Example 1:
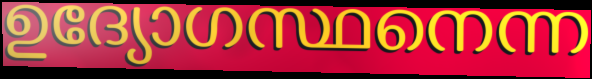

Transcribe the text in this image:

ഉദ്യോഗസ്ഥനെന്ന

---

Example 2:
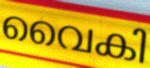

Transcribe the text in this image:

വൈകി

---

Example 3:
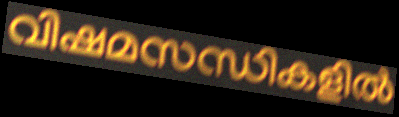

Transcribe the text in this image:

വിഷമസന്ധികളിൽ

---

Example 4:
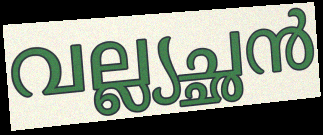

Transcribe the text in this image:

വല്ല്യച്ഛൻ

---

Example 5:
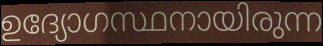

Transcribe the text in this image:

ഉദ്യോഗസ്ഥനായിരുന്ന